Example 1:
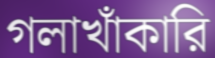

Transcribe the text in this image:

গলাখাঁকারি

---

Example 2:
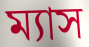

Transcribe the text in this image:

ম্যাস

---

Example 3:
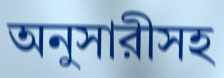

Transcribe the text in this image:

অনুসারীসহ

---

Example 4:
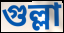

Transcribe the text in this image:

গুল্লা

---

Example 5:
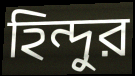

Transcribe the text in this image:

হিন্দুর